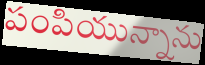
పంపియున్నాను